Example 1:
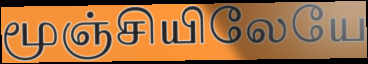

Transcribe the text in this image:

மூஞ்சியிலேயே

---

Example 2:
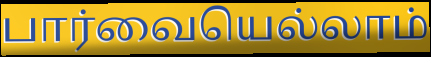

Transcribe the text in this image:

பார்வையெல்லாம்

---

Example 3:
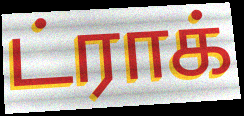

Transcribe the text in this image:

ட்ராக்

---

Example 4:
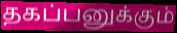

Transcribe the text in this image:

தகப்பனுக்கும்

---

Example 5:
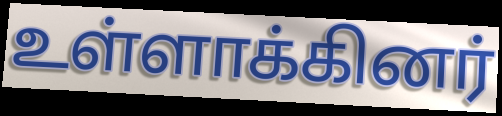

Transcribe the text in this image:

உள்ளாக்கினர்